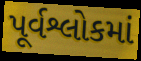
પૂર્વશ્લોકમાં